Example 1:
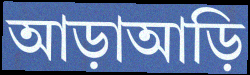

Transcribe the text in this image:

আড়াআড়ি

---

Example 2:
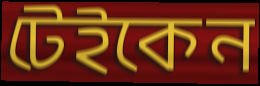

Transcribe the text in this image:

টেইকেন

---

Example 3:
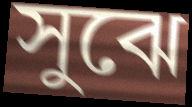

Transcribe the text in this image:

সুঝে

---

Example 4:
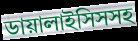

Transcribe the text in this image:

ডায়ালাইসিসসহ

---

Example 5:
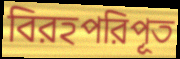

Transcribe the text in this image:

বিরহপরিপূত